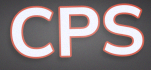
CPS